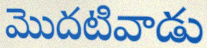
మొదటివాడు